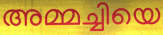
അമ്മച്ചിയെ